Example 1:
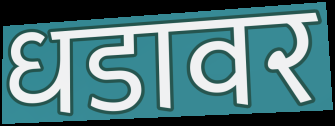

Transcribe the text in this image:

धडावर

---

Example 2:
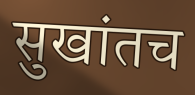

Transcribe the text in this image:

सुखांतच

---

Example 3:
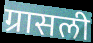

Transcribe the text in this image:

ग्रासली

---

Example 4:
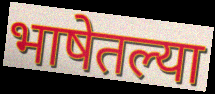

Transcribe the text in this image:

भाषेतल्या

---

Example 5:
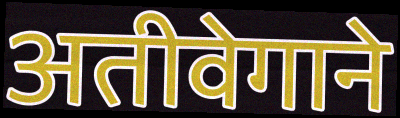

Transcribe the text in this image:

अतीवेगाने